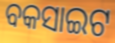
ବକସାଇଟ